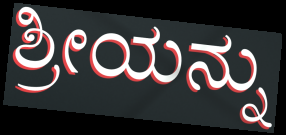
ಶ್ರೀಯನ್ನು